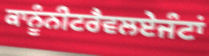
ਕਾਨੂੰਨੀਟਰੈਵਲਏਜੰਟਾਂ